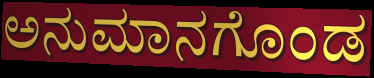
ಅನುಮಾನಗೊಂಡ